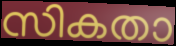
സികതാ